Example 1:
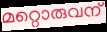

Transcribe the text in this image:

മറ്റൊരുവന്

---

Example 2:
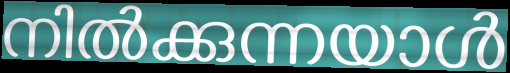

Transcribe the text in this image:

നിൽക്കുന്നയാൾ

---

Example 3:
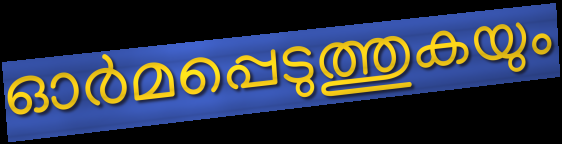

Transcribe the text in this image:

ഓർമപ്പെടുത്തുകയും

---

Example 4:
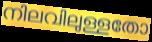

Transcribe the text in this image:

നിലവിലുള്ളതോ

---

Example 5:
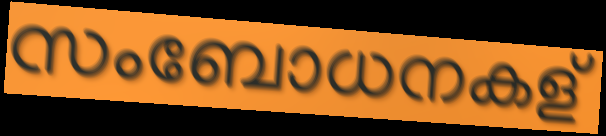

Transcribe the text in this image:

സംബോധനകള്